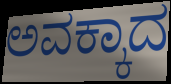
ಅವಕ್ಕಾದ